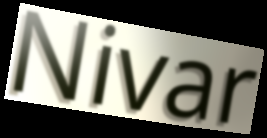
Nivar